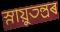
স্নায়ুতন্ত্ৰৰ